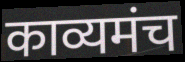
काव्यमंच